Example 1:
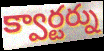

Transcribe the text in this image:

క్వార్టర్ను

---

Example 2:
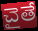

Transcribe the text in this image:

చైతే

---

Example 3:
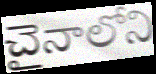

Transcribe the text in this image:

చైనాలోని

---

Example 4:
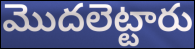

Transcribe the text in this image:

మొదలెట్టారు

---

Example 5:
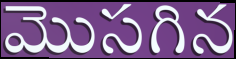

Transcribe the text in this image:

మొసగిన